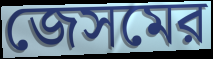
জেসমের